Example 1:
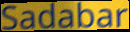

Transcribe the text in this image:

Sadabar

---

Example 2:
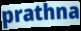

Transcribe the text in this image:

prathna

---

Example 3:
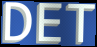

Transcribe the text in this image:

DET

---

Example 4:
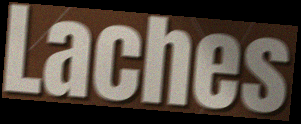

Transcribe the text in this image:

Laches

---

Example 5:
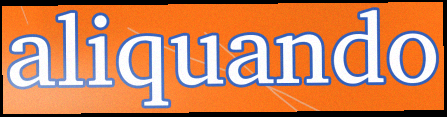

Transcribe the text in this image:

aliquando